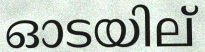
ഓടയില്